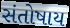
સંતોષાય